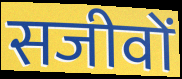
सजीवों